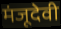
मंजूदेवी